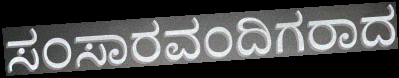
ಸಂಸಾರವಂದಿಗರಾದ